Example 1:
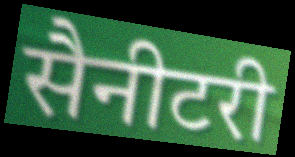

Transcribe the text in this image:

सैनीटरी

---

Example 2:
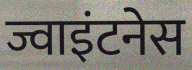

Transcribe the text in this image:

ज्वाइंटनेस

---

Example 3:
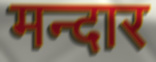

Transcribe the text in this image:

मन्दार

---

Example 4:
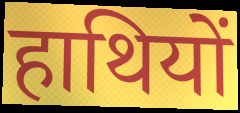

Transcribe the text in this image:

हाथियों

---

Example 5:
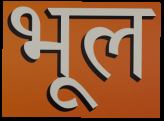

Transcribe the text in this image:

भूल